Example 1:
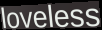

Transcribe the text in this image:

loveless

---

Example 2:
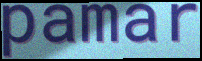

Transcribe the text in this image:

pamar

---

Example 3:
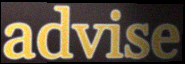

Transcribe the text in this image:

advise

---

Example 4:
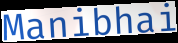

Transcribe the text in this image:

Manibhai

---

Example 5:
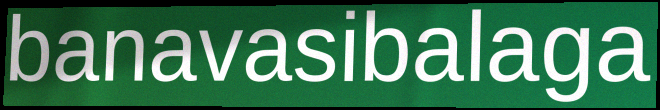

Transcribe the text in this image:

banavasibalaga